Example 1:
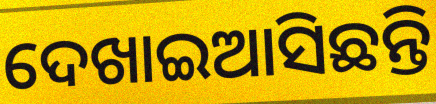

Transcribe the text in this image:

ଦେଖାଇଆସିଛନ୍ତି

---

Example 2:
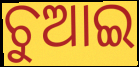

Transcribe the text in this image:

ଚୁଆଇ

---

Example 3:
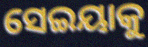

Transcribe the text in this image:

ସେଇୟାକୁ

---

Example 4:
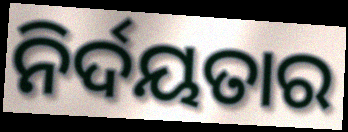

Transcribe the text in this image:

ନିର୍ଦୟତାର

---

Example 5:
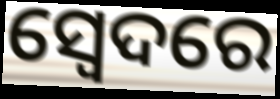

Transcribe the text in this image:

ସ୍ଵେଦରେ